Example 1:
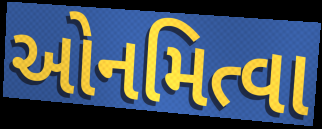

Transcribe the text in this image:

ઓનમિત્વા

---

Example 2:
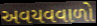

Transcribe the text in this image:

અવયવવાળો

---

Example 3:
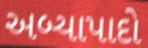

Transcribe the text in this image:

અબ્યાપાદો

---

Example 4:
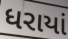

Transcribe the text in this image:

ધરાયાં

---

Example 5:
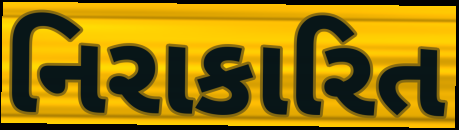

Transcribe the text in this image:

નિરાકારિત